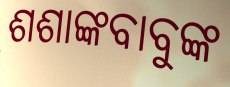
ଶଶାଙ୍କବାବୁଙ୍କ